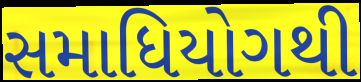
સમાધિયોગથી